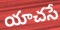
యాచసే